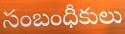
సంబంధీకులు